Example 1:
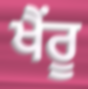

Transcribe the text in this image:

ਖੈਂਰੂ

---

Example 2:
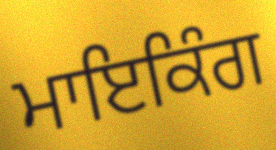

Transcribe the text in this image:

ਮਾਇਕਿੰਗ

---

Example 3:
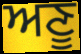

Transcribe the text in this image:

ਅਣੂ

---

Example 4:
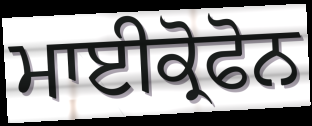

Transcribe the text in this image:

ਮਾਈਕ੍ਰੋਫੋਨ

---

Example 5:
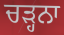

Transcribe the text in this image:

ਚੜ੍ਹਨਾ